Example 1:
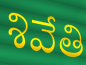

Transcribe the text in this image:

శివేతి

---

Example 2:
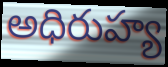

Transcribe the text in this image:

అధిరుహ్య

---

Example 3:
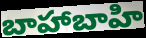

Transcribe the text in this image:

బాహాబాహి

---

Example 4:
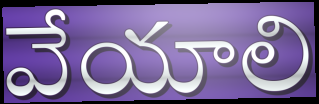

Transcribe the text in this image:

వేయాలి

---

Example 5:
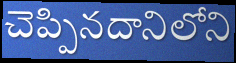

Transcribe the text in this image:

చెప్పినదానిలోని